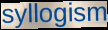
syllogism